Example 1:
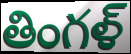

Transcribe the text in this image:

తింగళ్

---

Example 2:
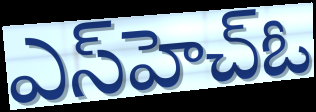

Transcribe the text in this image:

ఎస్‌హెచ్ఓ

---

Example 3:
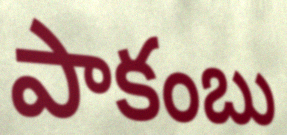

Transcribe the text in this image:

పాకంబు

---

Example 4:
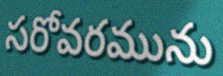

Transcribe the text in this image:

సరోవరమును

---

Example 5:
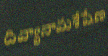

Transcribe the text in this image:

దివ్యానామశేషేణ